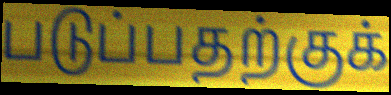
படுப்பதற்குக்